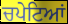
ਚਪੇਟਿਆਂ